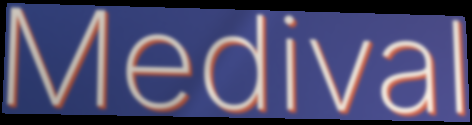
Medival